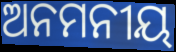
ଅନମନୀୟ